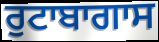
ਰੁਟਾਬਾਗਾਸ